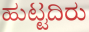
ಹುಟ್ಟದಿರು